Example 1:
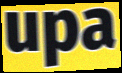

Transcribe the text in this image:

upa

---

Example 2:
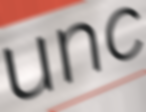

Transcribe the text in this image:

unc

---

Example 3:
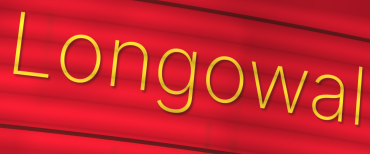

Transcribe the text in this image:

Longowal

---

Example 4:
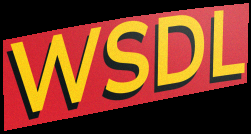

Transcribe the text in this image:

WSDL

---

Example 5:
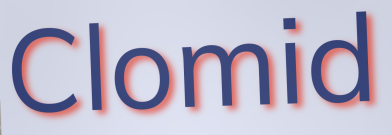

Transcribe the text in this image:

Clomid